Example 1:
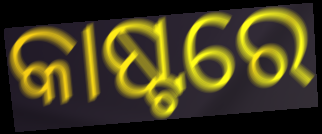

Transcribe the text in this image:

କାଷ୍ଟରେ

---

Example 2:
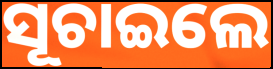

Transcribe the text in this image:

ସୂଚାଇଲେ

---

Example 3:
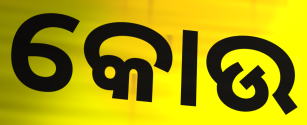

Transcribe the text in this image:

କୋଉ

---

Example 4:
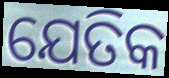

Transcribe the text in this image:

ଯେତିକ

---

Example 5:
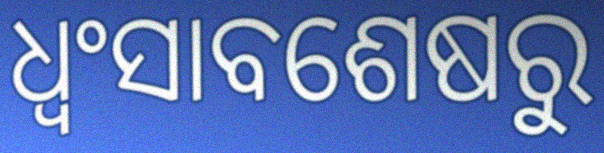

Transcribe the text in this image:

ଧ୍ୱଂସାବଶେଷରୁ